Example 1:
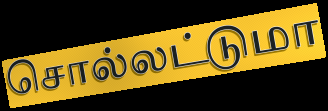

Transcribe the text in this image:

சொல்லட்டுமா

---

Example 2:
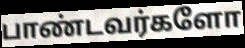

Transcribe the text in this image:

பாண்டவர்களோ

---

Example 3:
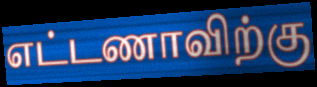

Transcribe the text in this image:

எட்டணாவிற்கு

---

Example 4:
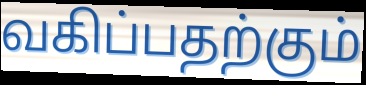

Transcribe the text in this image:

வகிப்பதற்கும்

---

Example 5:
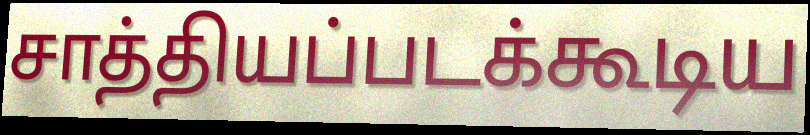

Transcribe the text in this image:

சாத்தியப்படக்கூடிய